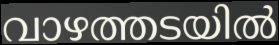
വാഴത്തടയിൽ